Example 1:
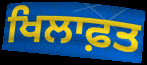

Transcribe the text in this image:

ਖਿਲਾਫ਼ਤ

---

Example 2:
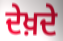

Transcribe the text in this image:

ਦੇਖ਼ਦੇ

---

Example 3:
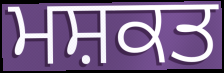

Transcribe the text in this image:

ਮਸ਼ਕਤ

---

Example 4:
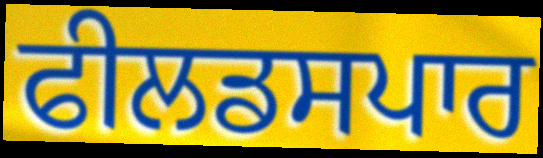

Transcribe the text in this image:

ਫੀਲਡਸਪਾਰ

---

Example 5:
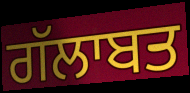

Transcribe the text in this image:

ਗੱਲਾਬਤ